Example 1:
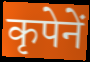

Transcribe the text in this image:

कृपेनें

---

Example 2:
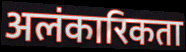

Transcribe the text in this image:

अलंकारिकता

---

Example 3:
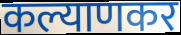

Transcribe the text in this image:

कल्याणकर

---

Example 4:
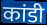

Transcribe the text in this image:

कांडी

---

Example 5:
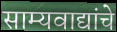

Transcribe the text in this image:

साम्यवाद्यांचे